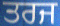
ਤਰਜ